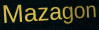
Mazagon